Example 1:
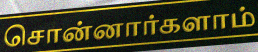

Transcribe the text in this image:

சொன்னார்களாம்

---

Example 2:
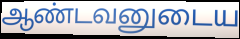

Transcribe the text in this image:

ஆண்டவனுடைய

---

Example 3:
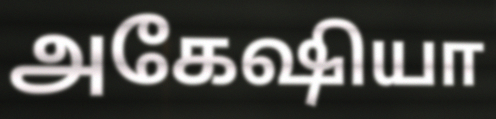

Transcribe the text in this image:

அகேஷியா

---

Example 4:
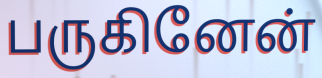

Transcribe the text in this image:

பருகினேன்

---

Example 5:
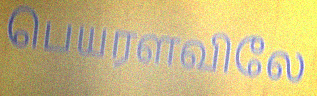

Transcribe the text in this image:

பெயரளவிலே